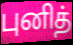
புனித்